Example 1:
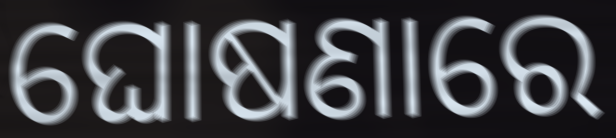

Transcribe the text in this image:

ଘୋଷଣାରେ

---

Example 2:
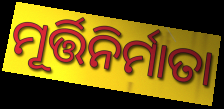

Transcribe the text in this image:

ମୂର୍ତ୍ତିନିର୍ମାତା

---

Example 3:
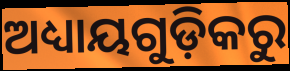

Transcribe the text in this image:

ଅଧ୍ୟାୟଗୁଡ଼ିକରୁ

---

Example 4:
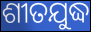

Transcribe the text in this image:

ଶୀତଯୁଦ୍ଧ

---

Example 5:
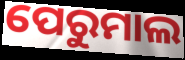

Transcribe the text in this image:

ପେରୁମାଲ